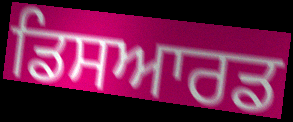
ਡਿਸਆਰਡ